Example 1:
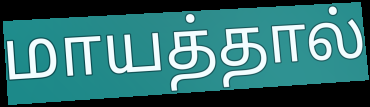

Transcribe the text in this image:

மாயத்தால்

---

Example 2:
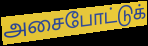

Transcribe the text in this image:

அசைபோட்டுக்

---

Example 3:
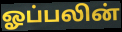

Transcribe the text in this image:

ஓப்பலின்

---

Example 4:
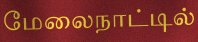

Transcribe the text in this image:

மேலைநாட்டில்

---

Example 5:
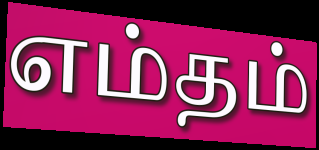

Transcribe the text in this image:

எம்தம்